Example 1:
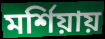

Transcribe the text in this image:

মর্শিয়ায়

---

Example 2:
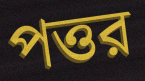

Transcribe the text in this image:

পত্তর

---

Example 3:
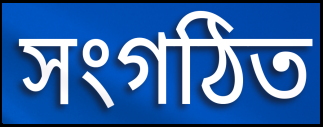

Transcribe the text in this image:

সংগঠিত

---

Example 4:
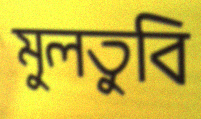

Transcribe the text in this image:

মুলতুবি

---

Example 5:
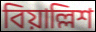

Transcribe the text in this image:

বিয়াল্লিশ